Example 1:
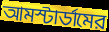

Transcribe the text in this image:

আমস্টার্ডামের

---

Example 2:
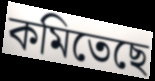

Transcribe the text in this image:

কমিতেছে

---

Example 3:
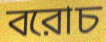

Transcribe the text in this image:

বরোচ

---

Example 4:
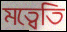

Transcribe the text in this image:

মত্বেতি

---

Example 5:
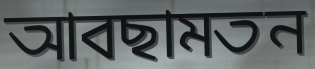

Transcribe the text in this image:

আবছামতন